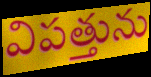
విపత్తును